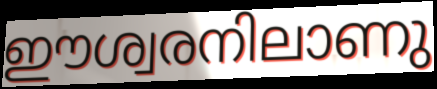
ഈശ്വരനിലാണു